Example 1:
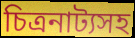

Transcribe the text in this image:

চিত্রনাট্যসহ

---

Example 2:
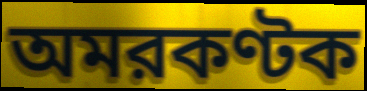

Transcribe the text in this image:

অমরকণ্টক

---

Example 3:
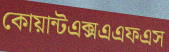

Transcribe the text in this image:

কোয়ান্টএক্সএএফএস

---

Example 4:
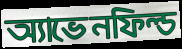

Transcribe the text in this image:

অ্যাভেনফিল্ড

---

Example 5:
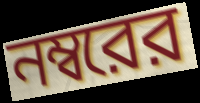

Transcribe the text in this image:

নম্বরের